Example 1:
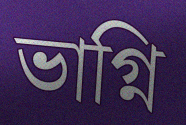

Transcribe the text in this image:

ভাগ্নি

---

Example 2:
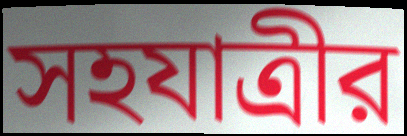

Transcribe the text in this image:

সহযাত্রীর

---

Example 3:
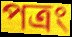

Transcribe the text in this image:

পত্রং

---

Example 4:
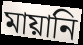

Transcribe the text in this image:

মায়ানি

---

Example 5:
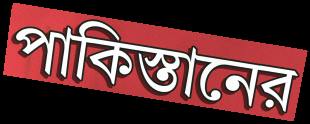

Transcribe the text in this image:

পাকিস্তানের